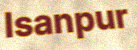
Isanpur